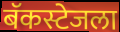
बॅकस्टेजला